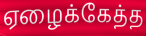
ஏழைக்கேத்த